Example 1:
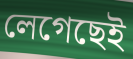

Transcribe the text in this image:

লেগেছেই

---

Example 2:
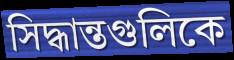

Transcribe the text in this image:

সিদ্ধান্তগুলিকে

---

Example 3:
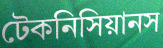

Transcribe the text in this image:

টেকনিসিয়ানস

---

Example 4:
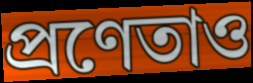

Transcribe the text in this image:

প্রণেতাও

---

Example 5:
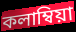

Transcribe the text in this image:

কলাম্বিয়া